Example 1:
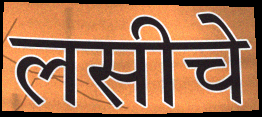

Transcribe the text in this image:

लसीचे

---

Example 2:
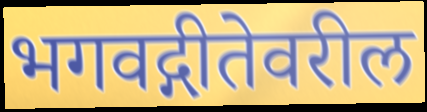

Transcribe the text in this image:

भगवद्गीतेवरील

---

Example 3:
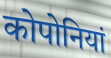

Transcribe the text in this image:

कोपोनियां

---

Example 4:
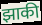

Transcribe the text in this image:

झाकी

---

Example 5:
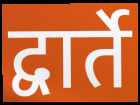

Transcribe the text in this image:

द्वार्ते